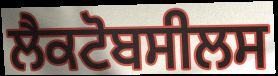
ਲੈਕਟੋਬਸੀਲਸ